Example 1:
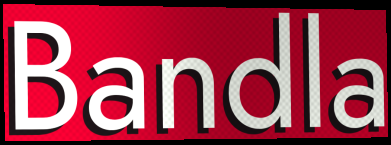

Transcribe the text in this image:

Bandla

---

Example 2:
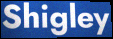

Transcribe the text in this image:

Shigley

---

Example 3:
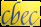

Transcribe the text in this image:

cbec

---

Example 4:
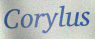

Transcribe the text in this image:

Corylus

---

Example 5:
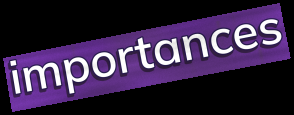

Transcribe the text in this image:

importances